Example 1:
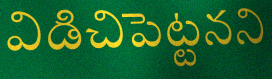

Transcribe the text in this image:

విడిచిపెట్టనని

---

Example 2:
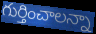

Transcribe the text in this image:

గుర్తించాలన్నా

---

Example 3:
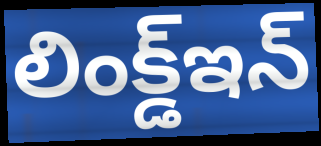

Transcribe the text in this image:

లింక్డ్ఇన్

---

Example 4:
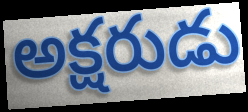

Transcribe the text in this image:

అక్షరుడు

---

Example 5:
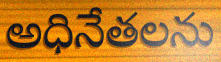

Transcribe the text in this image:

అధినేతలను